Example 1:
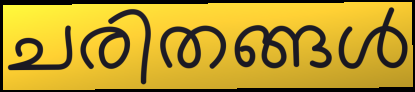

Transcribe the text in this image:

ചരിതങ്ങൾ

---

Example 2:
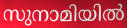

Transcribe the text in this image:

സുനാമിയിൽ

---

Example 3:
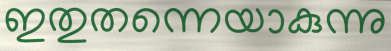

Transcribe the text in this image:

ഇതുതന്നെയാകുന്നു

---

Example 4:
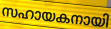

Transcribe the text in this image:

സഹായകനായി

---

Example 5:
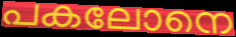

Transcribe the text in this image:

പകലോനെ